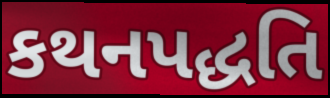
કથનપદ્ધતિ